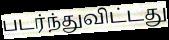
படர்ந்துவிட்டது